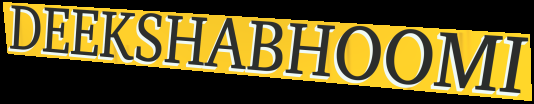
DEEKSHABHOOMI